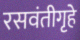
रसवंतीगृहे